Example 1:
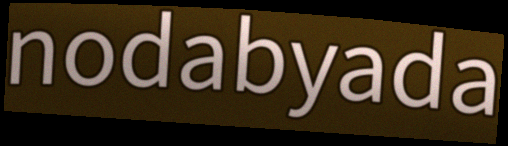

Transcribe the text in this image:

nodabyada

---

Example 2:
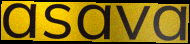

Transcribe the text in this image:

asava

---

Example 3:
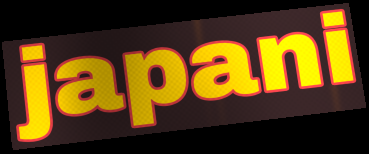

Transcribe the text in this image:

japani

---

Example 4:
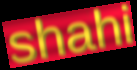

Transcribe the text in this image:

shahi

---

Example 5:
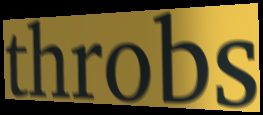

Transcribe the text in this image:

throbs